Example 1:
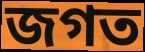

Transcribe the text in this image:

জগত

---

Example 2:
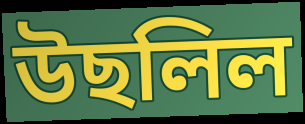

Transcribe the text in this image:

উছলিল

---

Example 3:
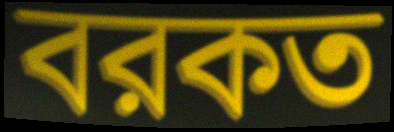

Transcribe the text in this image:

বরকত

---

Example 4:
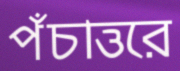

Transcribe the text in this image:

পঁচাত্তরে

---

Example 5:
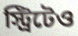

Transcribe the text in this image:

স্ট্রিটেও